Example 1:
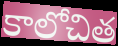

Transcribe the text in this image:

కాలోచిత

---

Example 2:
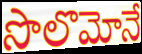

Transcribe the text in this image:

సొలొమోనే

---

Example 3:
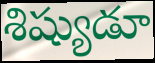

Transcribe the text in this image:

శిష్యుడూ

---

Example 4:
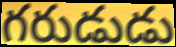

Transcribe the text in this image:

గరుడుడు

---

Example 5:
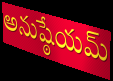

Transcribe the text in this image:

అనుష్ఠేయమ్